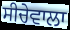
ਸੀਚੇਵਾਲਾ